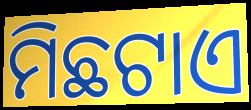
ମିଛଟାଏ